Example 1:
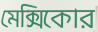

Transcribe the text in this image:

মেক্সিকোর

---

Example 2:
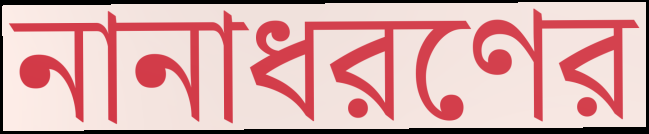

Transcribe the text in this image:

নানাধরণের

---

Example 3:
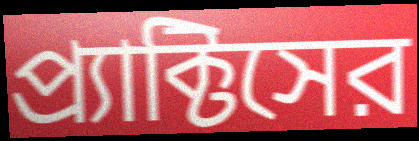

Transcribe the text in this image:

প্র্যাক্টিসের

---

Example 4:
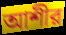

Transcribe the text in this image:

আশীর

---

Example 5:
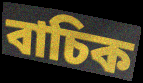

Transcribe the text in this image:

বাচিক